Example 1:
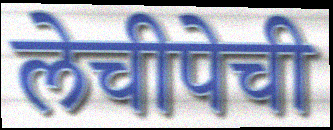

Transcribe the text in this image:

लेचीपेची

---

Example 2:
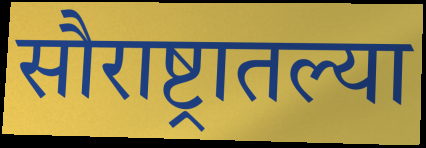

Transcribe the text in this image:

सौराष्ट्रातल्या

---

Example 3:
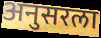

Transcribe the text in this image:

अनुसरला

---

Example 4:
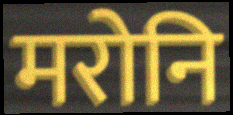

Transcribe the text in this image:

मरोनि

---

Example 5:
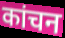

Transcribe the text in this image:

कांचन